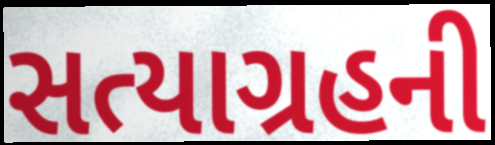
સત્યાગ્રહની